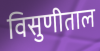
विसुणीताल